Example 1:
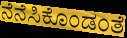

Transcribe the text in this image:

ನೆನೆಸಿಕೊಂಡಂತೆ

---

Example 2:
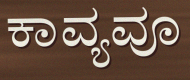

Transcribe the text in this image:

ಕಾವ್ಯವೂ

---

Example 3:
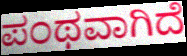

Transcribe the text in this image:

ಪಂಥವಾಗಿದೆ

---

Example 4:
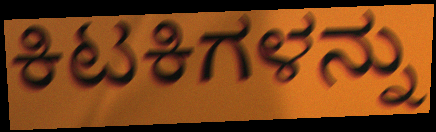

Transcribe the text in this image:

ಕಿಟಕಿಗಳನ್ನು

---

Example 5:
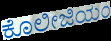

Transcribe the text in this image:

ಕೊಲೀಜಿಯಂ